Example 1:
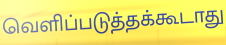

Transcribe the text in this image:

வெளிப்படுத்தக்கூடாது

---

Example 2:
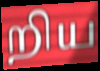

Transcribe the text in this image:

றிய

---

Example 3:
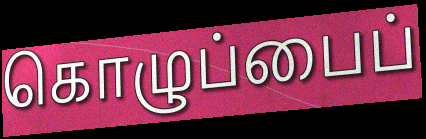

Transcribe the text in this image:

கொழுப்பைப்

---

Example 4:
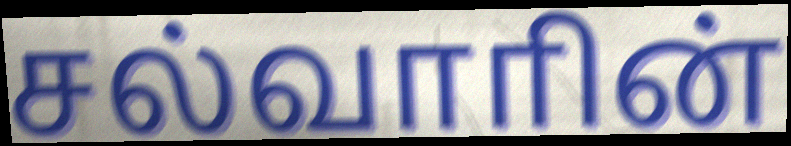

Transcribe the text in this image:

சல்வாரின்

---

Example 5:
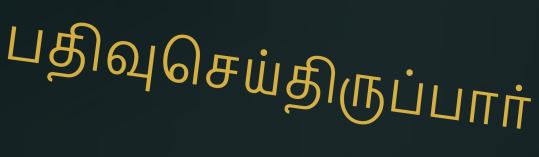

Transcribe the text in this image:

பதிவுசெய்திருப்பார்